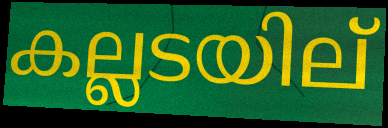
കല്ലടയില്